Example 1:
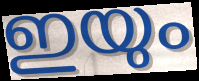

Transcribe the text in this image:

ഇയും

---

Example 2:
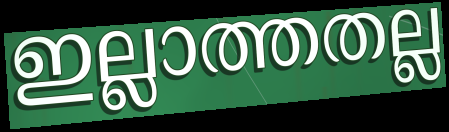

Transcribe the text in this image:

ഇല്ലാത്തതല്ല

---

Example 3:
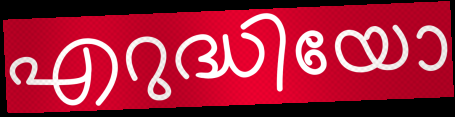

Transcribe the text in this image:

എറുദ്ധിയോ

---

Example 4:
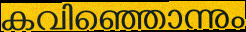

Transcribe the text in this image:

കവിഞ്ഞൊന്നും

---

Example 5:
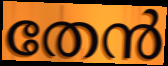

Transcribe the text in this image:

തേൻ